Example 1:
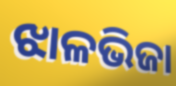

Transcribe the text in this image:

ଝାଳଭିଜା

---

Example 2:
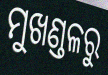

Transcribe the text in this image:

ମୁଖଣ୍ଡଳରୁ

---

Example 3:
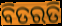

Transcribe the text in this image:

ବିତରତି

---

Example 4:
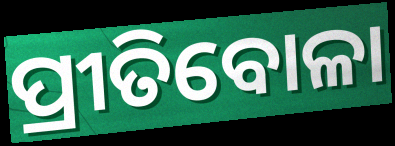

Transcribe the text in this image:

ପ୍ରୀତିବୋଳା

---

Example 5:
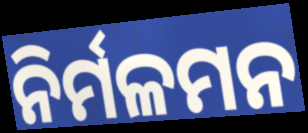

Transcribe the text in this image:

ନିର୍ମଳମନ